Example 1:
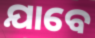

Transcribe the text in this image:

ଯାବେ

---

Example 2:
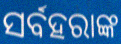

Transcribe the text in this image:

ସର୍ବହରାଙ୍କ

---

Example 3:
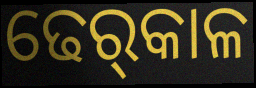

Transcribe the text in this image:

ଢେର୍‌କାଳ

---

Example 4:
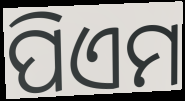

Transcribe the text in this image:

ପିଏମ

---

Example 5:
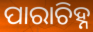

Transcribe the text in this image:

ପାରାଚିହ୍ନ